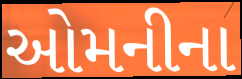
ઓમનીના